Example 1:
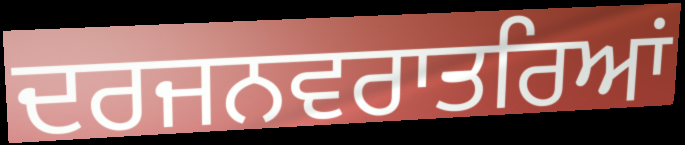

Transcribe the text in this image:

ਦਰਜਨਵਰਾਤਰਿਆਂ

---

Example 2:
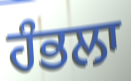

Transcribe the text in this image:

ਹੰਭਲਾ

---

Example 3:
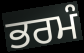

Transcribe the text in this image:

ਭਰਮੰ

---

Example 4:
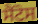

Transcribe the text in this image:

ਸੈਂਟੋਸ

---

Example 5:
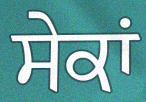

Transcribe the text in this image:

ਸੇਕਾਂ